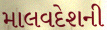
માલવદેશની